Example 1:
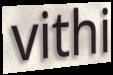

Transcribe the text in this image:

vithi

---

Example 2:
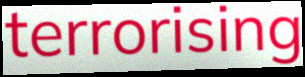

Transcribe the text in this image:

terrorising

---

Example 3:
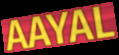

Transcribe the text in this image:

AAYAL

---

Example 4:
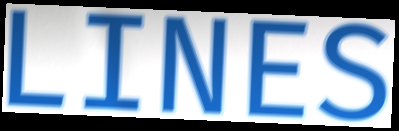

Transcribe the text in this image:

LINES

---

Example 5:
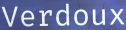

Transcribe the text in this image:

Verdoux